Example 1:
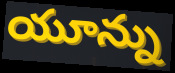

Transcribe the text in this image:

యూన్ను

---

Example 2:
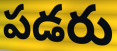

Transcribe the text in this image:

పడరు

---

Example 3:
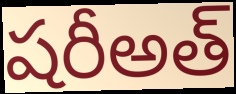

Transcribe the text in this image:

షరీఅత్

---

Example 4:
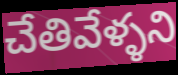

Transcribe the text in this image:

చేతివేళ్ళని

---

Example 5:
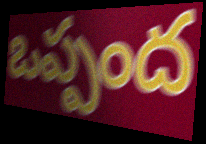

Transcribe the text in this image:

ఒప్పంద